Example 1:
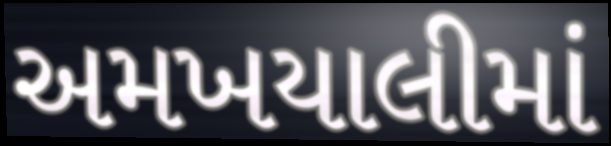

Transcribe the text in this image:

અમખયાલીમાં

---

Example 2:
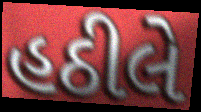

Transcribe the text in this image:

હઠીલે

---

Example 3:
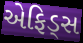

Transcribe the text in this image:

એફિડ્સ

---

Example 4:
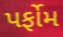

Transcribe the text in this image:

પર્ફોમ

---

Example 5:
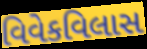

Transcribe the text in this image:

વિવેકવિલાસ